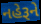
નહેરૂને